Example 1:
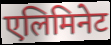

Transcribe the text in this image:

एलिमिनेट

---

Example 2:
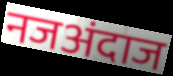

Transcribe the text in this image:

नजअंदाज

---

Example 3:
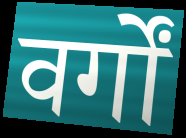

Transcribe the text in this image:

वर्गों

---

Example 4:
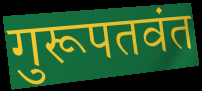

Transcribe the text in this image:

गुरूपतवंत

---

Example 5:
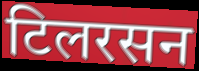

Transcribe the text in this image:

टिलरसन